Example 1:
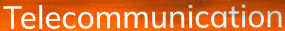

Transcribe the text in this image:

Telecommunication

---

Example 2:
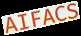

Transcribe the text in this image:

AIFACS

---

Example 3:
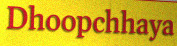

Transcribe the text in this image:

Dhoopchhaya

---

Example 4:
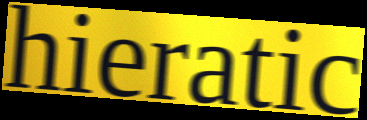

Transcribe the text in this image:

hieratic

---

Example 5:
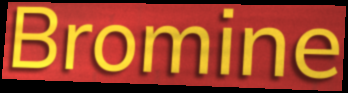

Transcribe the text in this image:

Bromine